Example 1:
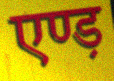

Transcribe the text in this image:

एण्ड़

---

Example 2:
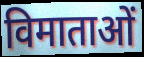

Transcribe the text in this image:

विमाताओं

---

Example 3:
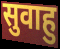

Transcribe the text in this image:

सुवाहु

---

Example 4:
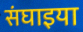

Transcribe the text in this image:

संघाइया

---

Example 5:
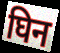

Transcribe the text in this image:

घिन